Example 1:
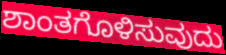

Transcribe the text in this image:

ಶಾಂತಗೊಳಿಸುವುದು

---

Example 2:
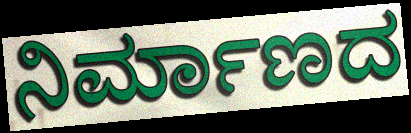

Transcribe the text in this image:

ನಿರ್ಮಾಣದ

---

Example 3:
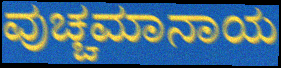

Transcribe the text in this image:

ವುಚ್ಚಮಾನಾಯ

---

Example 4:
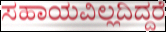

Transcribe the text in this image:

ಸಹಾಯವಿಲ್ಲದಿದ್ದರೆ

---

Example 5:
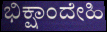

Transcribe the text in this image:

ಭಿಕ್ಷಾಂದೇಹಿ